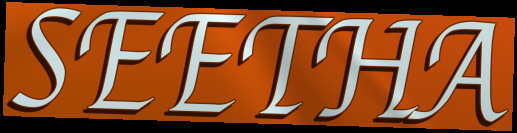
SEETHA